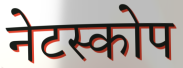
नेटस्कोप